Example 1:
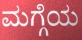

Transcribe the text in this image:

ಮಗ್ಗೆಯ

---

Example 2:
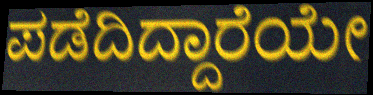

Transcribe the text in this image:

ಪಡೆದಿದ್ದಾರೆಯೇ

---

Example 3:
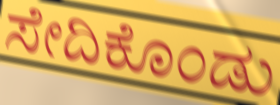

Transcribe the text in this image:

ಸೇದಿಕೊಂಡು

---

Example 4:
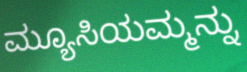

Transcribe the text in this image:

ಮ್ಯೂಸಿಯಮ್ಮನ್ನು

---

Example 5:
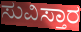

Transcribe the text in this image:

ಸುವಿಸ್ತಾರ